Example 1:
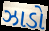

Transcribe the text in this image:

ઝાડો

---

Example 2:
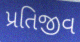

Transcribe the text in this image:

પ્રતિજીવ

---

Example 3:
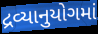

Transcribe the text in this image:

દ્રવ્યાનુયોગમાં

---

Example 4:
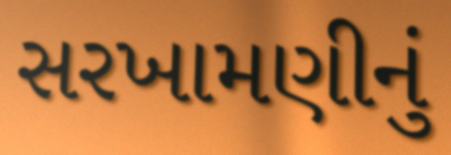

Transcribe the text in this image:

સરખામણીનું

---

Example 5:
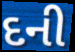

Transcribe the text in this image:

દની